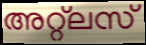
അറ്റ്ലസ്